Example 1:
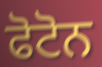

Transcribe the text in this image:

ਫੋਟੋਨ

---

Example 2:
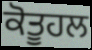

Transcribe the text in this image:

ਕੋਤੂਹਲ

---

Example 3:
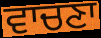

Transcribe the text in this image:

ਵਾਚਣਾ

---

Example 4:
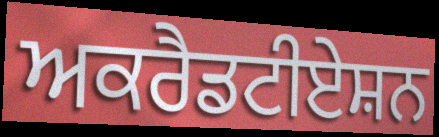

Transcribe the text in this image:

ਅਕਰੈਡਟੀਏਸ਼ਨ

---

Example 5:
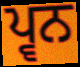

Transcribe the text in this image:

ਪ੍ਵਨ